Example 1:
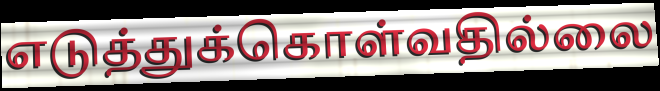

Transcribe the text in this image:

எடுத்துக்கொள்வதில்லை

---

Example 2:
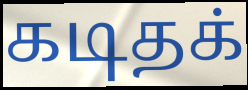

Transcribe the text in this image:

கடிதக்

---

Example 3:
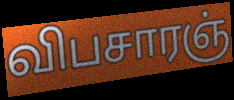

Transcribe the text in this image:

விபசாரஞ்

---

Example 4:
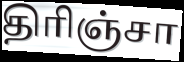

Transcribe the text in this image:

திரிஞ்சா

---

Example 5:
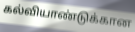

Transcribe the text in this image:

கல்வியாண்டுக்கான